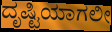
ದೃಷ್ಟಿಯಾಗಲೀ